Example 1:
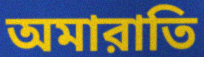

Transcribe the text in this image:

অমারাতি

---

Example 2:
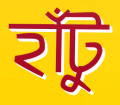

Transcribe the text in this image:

হাঁটু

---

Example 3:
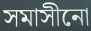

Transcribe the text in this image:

সমাসীনো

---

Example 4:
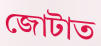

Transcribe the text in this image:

জোটাত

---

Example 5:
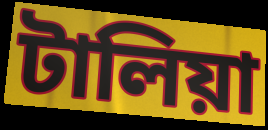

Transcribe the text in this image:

টালিয়া